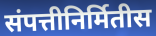
संपत्तीनिर्मितीस